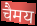
चैमय